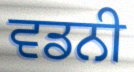
ਵਡਨੀ